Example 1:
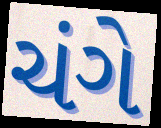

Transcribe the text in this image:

ચંગે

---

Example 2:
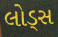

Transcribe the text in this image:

લોડ્સ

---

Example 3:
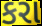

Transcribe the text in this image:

કરા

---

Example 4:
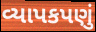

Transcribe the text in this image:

વ્યાપકપણું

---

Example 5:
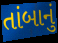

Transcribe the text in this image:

તાંબાનું